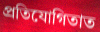
প্ৰতিযোগিতাত